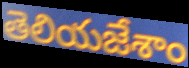
తెలియజేశాం